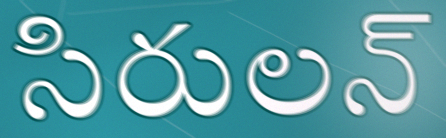
సిరులన్